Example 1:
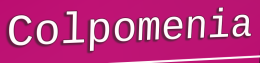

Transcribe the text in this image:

Colpomenia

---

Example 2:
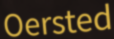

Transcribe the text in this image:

Oersted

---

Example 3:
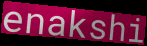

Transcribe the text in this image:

enakshi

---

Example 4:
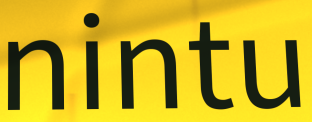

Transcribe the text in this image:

nintu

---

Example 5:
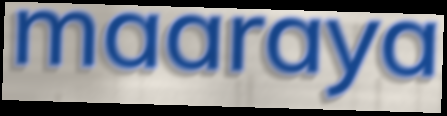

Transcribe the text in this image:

maaraya